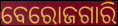
ବେରୋଜଗାରି